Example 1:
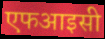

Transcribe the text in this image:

एफआइसी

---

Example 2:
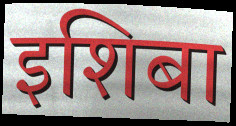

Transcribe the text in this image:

इशिबा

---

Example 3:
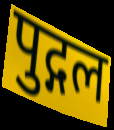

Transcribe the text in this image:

पुद्गल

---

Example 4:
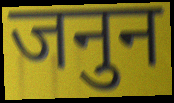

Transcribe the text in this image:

जनुन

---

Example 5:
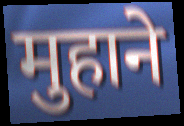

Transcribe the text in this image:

मुहाने